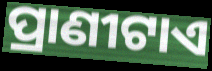
ପ୍ରାଣୀଟାଏ